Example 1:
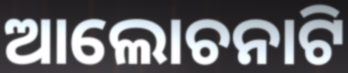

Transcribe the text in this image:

ଆଲୋଚନାଟି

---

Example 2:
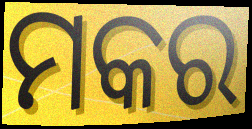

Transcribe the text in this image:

ମକର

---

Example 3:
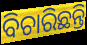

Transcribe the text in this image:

ବିଚାରିଛନ୍ତି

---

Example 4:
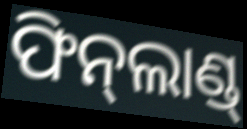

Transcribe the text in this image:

ଫିନ୍‌ଲାଣ୍ଡ୍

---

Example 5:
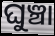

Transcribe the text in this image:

ଘୁଞ୍ଚା